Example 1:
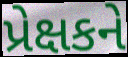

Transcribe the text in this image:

પ્રેક્ષકને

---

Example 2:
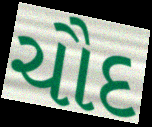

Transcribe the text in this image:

ચૌદ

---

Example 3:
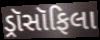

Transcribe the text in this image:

ડ્રૉસૉફિલા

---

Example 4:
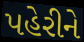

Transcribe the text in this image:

પહેરીને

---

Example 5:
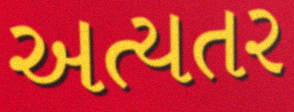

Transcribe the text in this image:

અત્યતર